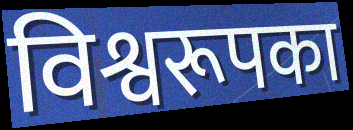
विश्वरूपका